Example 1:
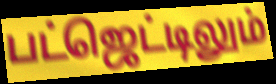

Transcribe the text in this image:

பட்ஜெட்டிலும்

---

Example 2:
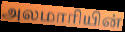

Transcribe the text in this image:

அலமாரியின்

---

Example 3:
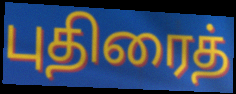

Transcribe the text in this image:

புதிரைத்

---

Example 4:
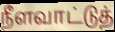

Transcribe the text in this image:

நீளவாட்டுத்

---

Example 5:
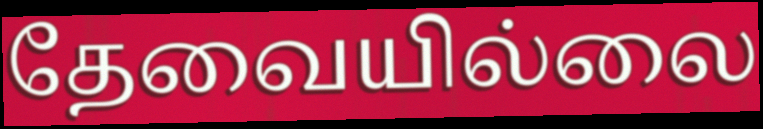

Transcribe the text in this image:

தேவையில்லை